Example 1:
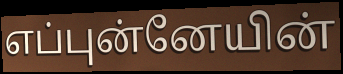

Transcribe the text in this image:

எப்புன்னேயின்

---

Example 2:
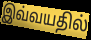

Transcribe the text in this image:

இவ்வயதில்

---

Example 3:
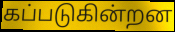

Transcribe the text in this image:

கப்படுகின்றன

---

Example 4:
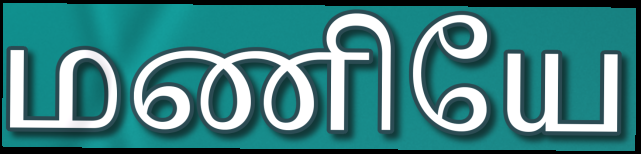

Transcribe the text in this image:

மணியே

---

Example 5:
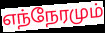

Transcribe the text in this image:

எந்நேரமும்